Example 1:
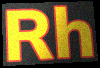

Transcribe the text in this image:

Rh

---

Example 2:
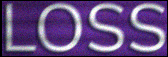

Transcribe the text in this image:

LOSS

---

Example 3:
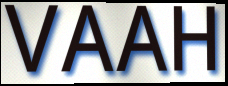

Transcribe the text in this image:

VAAH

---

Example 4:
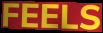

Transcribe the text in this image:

FEELS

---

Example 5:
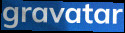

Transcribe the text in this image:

gravatar